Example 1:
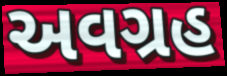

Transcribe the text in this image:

અવગ્રહ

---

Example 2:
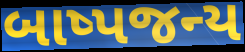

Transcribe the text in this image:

બાષ્પજન્ય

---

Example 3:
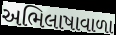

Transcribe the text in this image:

અભિલાષાવાળા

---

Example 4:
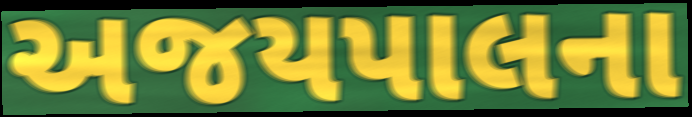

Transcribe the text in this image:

અજયપાલના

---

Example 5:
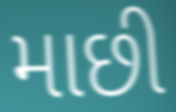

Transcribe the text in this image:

માછી